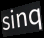
sinq